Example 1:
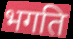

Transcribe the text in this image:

भगति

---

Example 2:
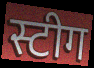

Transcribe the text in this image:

स्टीग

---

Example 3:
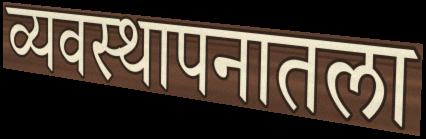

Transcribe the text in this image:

व्यवस्थापनातला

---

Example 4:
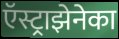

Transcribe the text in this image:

ऍस्ट्राझेनेका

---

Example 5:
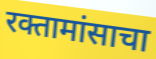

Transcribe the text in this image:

रक्तामांसाचा